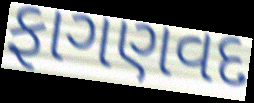
ફાગણવદ